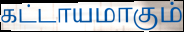
கட்டாயமாகும்